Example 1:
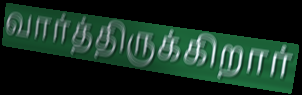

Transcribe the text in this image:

வார்த்திருக்கிறார்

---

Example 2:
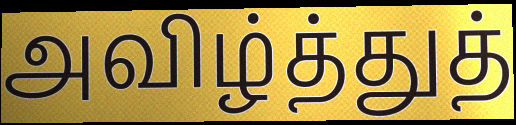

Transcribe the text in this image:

அவிழ்த்துத்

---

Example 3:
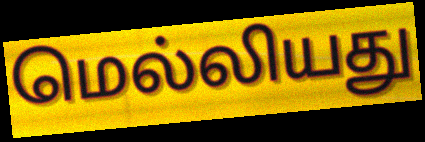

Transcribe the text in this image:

மெல்லியது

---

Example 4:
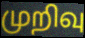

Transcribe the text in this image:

முறிவு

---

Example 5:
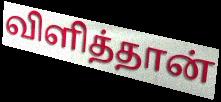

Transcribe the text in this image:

விளித்தான்